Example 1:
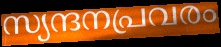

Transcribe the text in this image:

സ്യന്ദനപ്രവരം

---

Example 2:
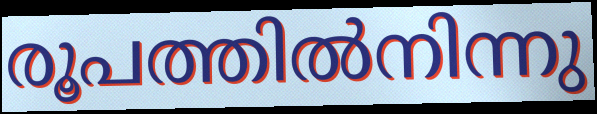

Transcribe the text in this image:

രൂപത്തിൽനിന്നു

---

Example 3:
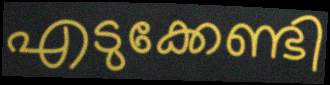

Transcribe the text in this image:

എടുക്കേണ്ടി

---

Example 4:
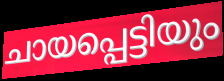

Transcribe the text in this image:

ചായപ്പെട്ടിയും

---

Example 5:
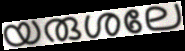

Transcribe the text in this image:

യരുശലേ